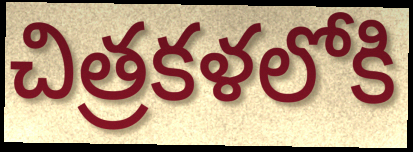
చిత్రకళలోకి